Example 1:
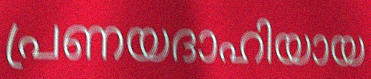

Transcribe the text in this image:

പ്രണയദാഹിയായ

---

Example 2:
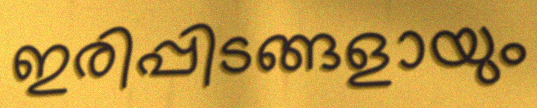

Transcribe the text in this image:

ഇരിപ്പിടങ്ങളായും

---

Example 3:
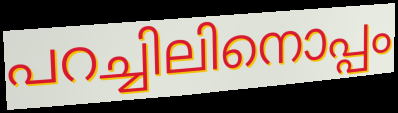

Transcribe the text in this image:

പറച്ചിലിനൊപ്പം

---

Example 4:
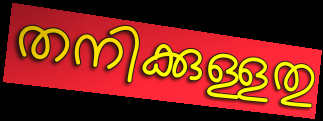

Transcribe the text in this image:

തനിക്കുള്ളതു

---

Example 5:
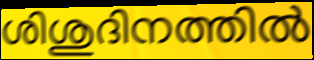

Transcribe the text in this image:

ശിശുദിനത്തിൽ